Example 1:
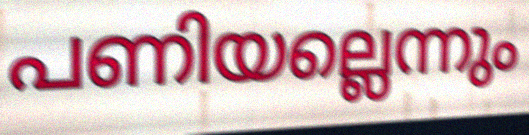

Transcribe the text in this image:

പണിയല്ലെന്നും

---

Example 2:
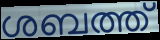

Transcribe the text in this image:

ശബത്ത്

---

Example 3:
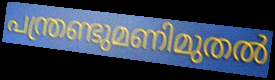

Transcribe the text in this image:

പന്ത്രണ്ടുമണിമുതൽ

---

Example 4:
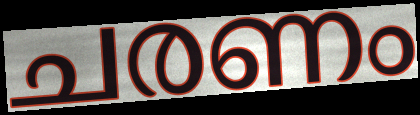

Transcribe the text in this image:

ചരണം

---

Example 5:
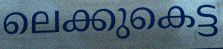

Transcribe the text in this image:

ലെക്കുകെട്ട